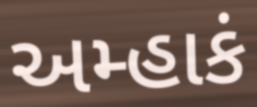
અમ્હાકં